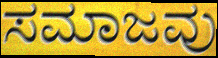
ಸಮಾಜವು